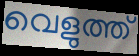
വെളുത്ത്